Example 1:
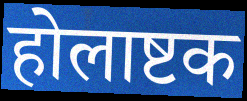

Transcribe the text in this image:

होलाष्टक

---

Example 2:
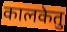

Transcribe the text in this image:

कालकेतु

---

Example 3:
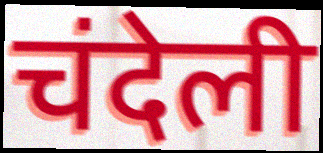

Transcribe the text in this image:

चंदेली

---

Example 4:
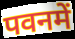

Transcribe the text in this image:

पवनमें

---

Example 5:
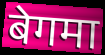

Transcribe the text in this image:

बेगमा